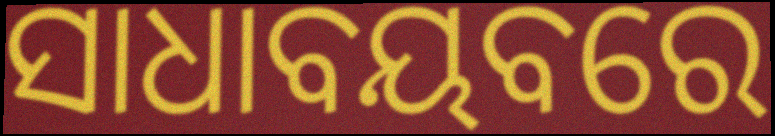
ସାଧାବୟବରେ